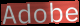
Adobe